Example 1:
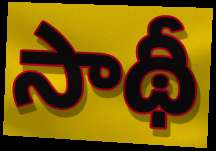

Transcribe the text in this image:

సాథీ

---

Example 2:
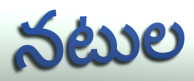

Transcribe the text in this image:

నటుల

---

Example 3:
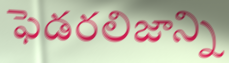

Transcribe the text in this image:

ఫెడరలిజాన్ని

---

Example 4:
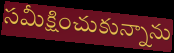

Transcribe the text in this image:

సమీక్షించుకున్నాను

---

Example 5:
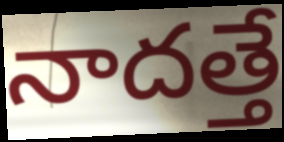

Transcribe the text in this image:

నాదత్తే